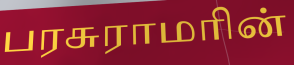
பரசுராமரின்